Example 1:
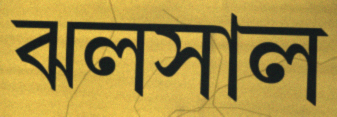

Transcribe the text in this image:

ঝলসাল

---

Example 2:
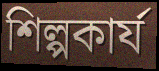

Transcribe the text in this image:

শিল্পকার্য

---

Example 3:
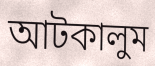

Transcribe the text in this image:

আটকালুম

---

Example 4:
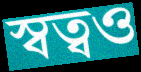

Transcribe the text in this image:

স্বত্বও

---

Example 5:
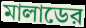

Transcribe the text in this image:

মালাডের